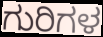
ಗುರಿಗಳ